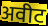
अवीट